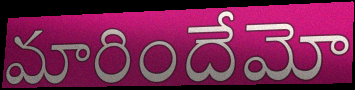
మారిందేమో